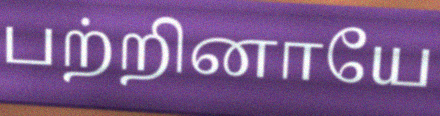
பற்றினாயே